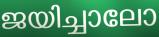
ജയിച്ചാലോ